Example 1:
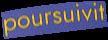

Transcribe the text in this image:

poursuivit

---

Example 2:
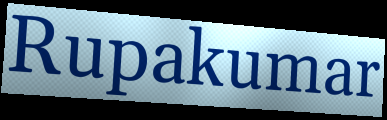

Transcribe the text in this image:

Rupakumar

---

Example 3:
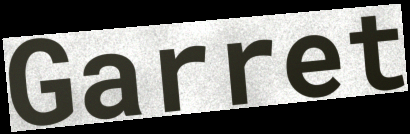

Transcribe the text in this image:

Garret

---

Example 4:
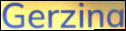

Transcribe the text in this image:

Gerzina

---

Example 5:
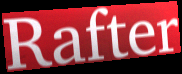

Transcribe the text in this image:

Rafter